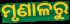
ମୃଣାଳରୁ